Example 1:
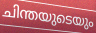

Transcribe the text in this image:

ചിന്തയുടെയും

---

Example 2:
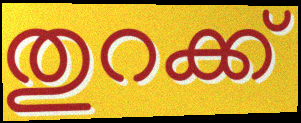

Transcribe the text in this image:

തുറക്ക്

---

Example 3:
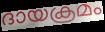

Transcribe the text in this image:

ദായക്രമം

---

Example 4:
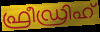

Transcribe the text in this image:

ഫ്രീഡ്രിഹ്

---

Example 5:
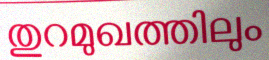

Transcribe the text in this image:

തുറമുഖത്തിലും